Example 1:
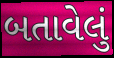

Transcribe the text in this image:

બતાવેલું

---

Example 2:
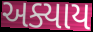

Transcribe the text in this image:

અક્યાય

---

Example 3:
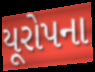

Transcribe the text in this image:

યૂરોપના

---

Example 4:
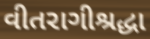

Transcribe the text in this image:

વીતરાગીશ્રદ્ધા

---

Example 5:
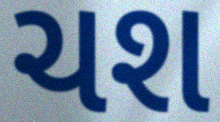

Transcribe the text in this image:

ચશ